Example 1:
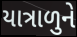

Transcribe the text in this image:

યાત્રાળુને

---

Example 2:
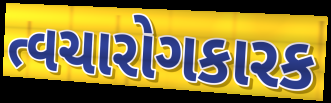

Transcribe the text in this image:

ત્વચારોગકારક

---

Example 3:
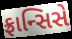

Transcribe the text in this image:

ફ્રાન્સિસે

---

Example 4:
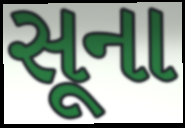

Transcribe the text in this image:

સૂના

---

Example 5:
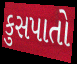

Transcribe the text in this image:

કુસપાતો